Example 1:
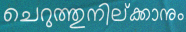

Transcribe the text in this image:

ചെറുത്തുനില്ക്കാനും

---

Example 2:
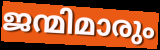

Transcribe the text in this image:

ജന്മിമാരും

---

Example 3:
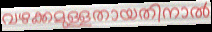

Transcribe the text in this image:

വഴക്കമുള്ളതായതിനാൽ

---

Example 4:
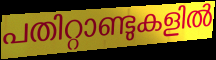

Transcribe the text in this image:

പതിറ്റാണ്ടുകളിൽ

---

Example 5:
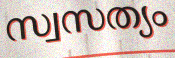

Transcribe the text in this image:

സ്വസത്യം